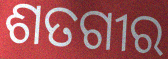
ଶତଗୀର